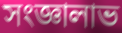
সংজ্ঞালাভ